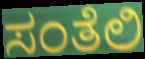
ಸಂತೆಲಿ